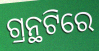
ଗ୍ରନ୍ଥଟିରେ